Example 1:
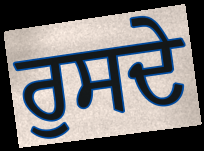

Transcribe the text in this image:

ਰੁਸਦੇ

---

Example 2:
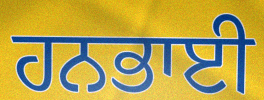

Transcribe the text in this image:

ਹਨਭਾਈ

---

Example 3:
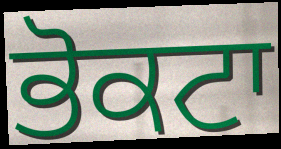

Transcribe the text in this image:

ਭੋਕਟਾ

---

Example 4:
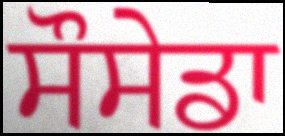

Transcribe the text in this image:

ਸੌਸੇਡਾ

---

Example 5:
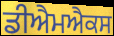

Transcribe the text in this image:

ਡੀਐਮਐਕਸ